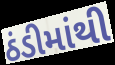
ઠંડીમાંથી